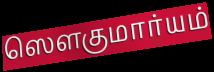
ஸௌகுமார்யம்